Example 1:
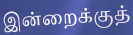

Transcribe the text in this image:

இன்றைக்குத்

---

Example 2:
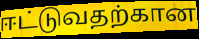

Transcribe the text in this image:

ஈட்டுவதற்கான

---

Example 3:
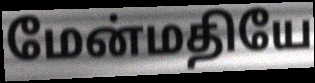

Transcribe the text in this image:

மேன்மதியே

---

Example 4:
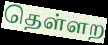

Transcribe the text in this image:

தெள்ளற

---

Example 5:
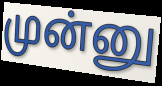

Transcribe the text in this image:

முன்னு